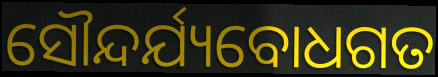
ସୌନ୍ଦର୍ଯ୍ୟବୋଧଗତ